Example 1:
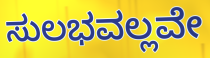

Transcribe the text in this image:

ಸುಲಭವಲ್ಲವೇ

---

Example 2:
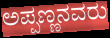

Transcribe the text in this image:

ಅಪ್ಪಣ್ಣನವರು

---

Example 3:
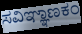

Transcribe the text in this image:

ಸವಿಞ್ಞಾಣಕಂ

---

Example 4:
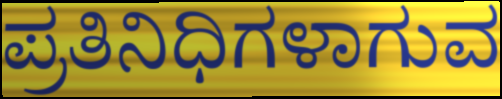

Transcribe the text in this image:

ಪ್ರತಿನಿಧಿಗಳಾಗುವ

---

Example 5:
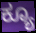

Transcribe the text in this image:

ಕ್ಯೂ